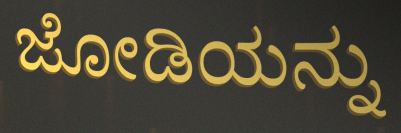
ಜೋಡಿಯನ್ನು